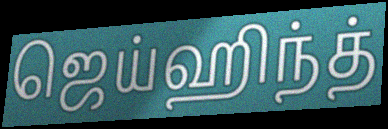
ஜெய்ஹிந்த்